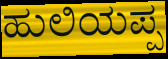
ಹುಲಿಯಪ್ಪ